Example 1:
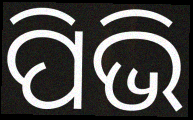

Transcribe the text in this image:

ପିଭି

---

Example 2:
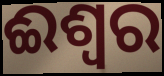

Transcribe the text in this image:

ଈଶ୍ୱର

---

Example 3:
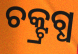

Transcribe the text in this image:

ଚକ୍ଟ୍ରଗ୍ଧ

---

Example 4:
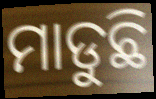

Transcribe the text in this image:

ମାଡୁଛି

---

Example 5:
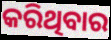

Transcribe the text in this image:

କରିଥିବାର